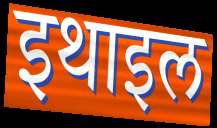
इथाइल